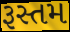
રૂસ્તમ